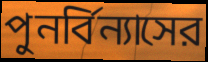
পুনর্বিন্যাসের